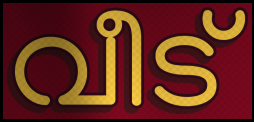
വീട്